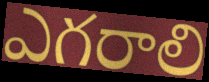
ఎగరాలి